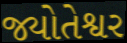
જ્યોતેશ્વર